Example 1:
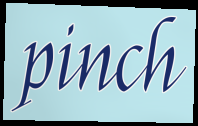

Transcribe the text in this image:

pinch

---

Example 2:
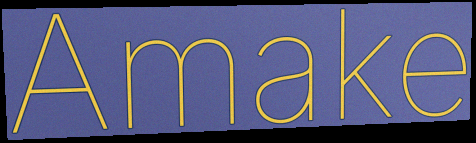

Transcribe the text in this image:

Amake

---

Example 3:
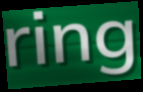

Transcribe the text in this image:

ring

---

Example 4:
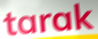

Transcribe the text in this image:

tarak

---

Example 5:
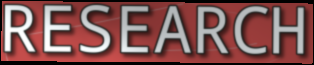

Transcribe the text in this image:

RESEARCH